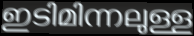
ഇടിമിന്നലുള്ള